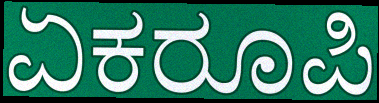
ಏಕರೂಪಿ